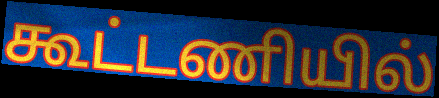
கூட்டணியில்